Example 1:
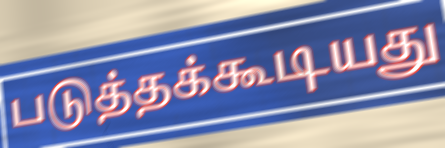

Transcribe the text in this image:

படுத்தக்கூடியது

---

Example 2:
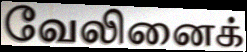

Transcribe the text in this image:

வேலினைக்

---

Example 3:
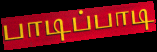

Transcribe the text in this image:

பாடிப்பாடி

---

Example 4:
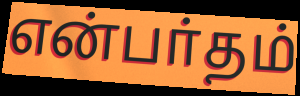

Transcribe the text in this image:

என்பர்தம்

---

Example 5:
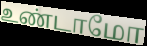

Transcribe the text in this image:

உண்டாமோ